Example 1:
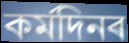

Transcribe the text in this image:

কৰ্মদিনৰ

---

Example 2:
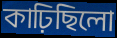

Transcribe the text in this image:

কাঢ়িছিলো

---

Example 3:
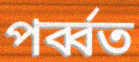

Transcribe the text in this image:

পৰ্ব্বত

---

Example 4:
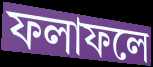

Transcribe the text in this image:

ফলাফলে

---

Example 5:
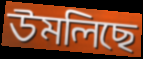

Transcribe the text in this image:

উমলিছে